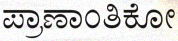
ಪ್ರಾಣಾಂತಿಕೋ